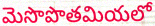
మెసొపొతమియలో